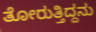
ತೋರುತ್ತಿದ್ದನು